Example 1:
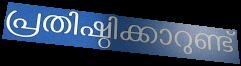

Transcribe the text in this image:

പ്രതിഷ്ഠിക്കാറുണ്ട്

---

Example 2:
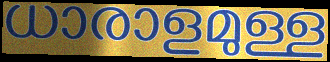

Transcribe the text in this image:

ധാരാളമുള്ള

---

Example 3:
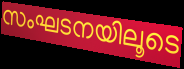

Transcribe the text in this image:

സംഘടനയിലൂടെ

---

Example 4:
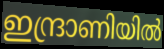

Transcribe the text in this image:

ഇന്ദ്രാണിയിൽ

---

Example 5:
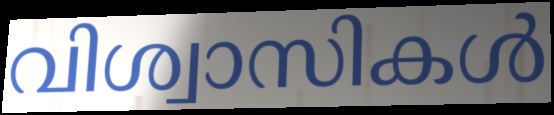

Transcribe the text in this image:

വിശ്വാസികൾ